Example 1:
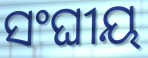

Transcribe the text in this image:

ସଂଘୀୟ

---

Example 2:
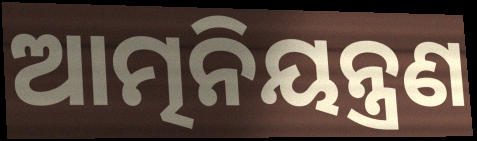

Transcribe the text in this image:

ଆତ୍ମନିୟନ୍ତ୍ରଣ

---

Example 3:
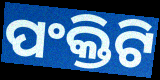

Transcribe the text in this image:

ପଂକ୍ତିଟି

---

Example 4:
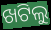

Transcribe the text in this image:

ଖଟିଲୁ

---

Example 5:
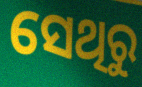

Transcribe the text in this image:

ସେଥିରୁ